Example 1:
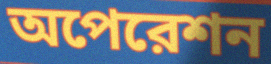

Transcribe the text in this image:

অপেরেশন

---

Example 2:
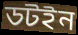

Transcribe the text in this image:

ডটইন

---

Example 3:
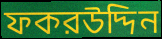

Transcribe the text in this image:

ফকরউদ্দিন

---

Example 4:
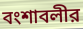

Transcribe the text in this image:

বংশাবলীর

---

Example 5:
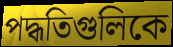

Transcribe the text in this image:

পদ্ধতিগুলিকে